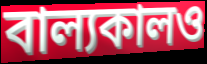
বাল্যকালও